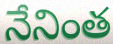
నేనింత